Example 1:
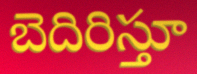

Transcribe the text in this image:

బెదిరిస్తూ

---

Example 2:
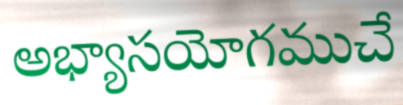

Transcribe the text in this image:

అభ్యాసయోగముచే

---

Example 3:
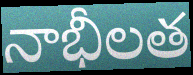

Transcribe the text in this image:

నాభీలత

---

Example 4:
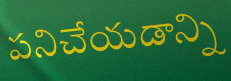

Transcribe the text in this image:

పనిచేయడాన్ని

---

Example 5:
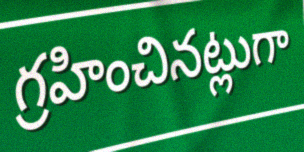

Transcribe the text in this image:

గ్రహించినట్లుగా